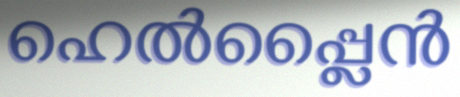
ഹെൽപ്പ്ലൈൻ